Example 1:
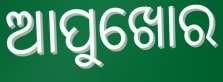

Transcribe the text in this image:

ଆପୁଖୋର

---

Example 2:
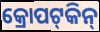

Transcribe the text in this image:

କ୍ରୋପଟ୍‍କିନ୍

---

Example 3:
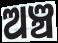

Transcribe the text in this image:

ଅଞ୍ଚ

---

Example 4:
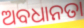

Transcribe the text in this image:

ଅବଧାନତା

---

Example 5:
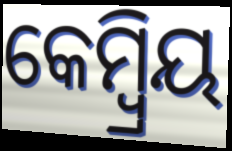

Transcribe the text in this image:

କେମ୍ବ୍ରିୟ